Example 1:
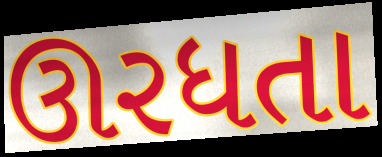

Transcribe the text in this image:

ઊરધતા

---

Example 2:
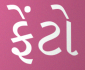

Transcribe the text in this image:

ફેંટો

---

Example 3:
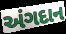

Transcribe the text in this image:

અંગદાન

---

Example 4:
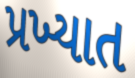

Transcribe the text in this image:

પ્રખ્યાત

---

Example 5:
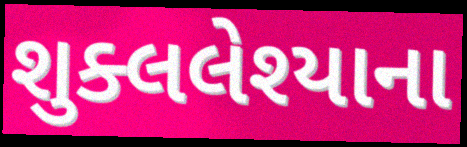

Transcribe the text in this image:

શુક્લલેશ્યાના